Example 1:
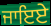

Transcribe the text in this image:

ਜਾਇਏ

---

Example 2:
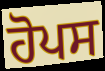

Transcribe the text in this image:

ਹੋਪਸ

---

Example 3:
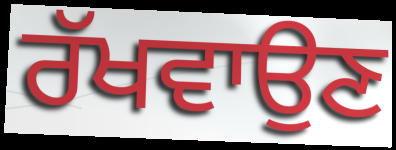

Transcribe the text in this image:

ਰੱਖਵਾਉਣ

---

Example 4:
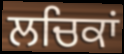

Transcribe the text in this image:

ਲਚਿਕਾਂ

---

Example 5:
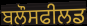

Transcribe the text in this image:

ਬਲੌਸਫੀਲਡ